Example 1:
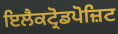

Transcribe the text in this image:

ਇਲੈਕਟ੍ਰੋਡਪੋਜ਼ਿਟ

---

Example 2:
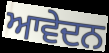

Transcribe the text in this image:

ਆਵੇਦਨ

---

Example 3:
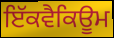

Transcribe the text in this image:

ਇੱਕਵੈਕਿਊਮ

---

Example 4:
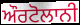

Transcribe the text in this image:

ਔਰਟੋਲਾਨੀ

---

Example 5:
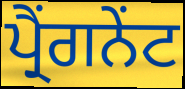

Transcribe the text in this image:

ਪ੍ਰੈਂਗਨੇਂਟ